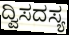
ದ್ವಿಸದಸ್ಯ